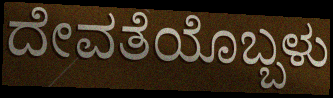
ದೇವತೆಯೊಬ್ಬಳು